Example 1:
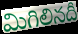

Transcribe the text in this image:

మిగిలినదీ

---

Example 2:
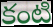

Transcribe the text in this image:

కంటి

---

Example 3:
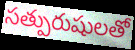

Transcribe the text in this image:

సత్పురుషులతో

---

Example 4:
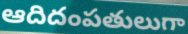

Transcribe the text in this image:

ఆదిదంపతులుగా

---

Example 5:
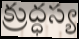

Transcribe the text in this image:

క్రుద్ధస్య